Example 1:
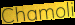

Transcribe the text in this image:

Chamoli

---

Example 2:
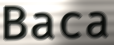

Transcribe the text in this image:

Baca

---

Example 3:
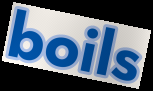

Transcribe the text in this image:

boils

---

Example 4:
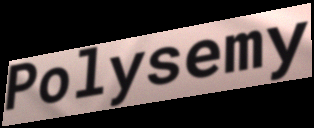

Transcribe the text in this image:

Polysemy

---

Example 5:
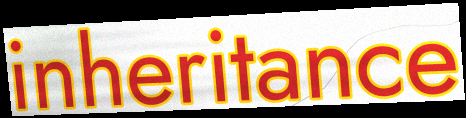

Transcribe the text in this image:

inheritance